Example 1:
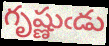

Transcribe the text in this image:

గృష్ణుఁడు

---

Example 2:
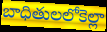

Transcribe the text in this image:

బాధితులలోకెల్లా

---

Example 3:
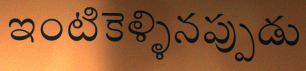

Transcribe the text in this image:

ఇంటికెళ్ళినప్పుడు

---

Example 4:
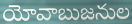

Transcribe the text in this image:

యోవాబుజనుల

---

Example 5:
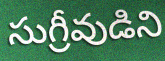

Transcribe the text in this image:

సుగ్రీవుడిని